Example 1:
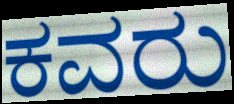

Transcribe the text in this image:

ಕವರು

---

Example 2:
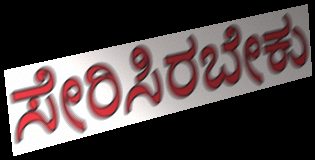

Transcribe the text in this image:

ಸೇರಿಸಿರಬೇಕು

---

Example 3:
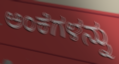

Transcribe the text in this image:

ಅಂಕೆಗಳನ್ನು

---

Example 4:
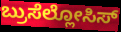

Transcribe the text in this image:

ಬ್ರುಸೆಲ್ಲೋಸಿಸ್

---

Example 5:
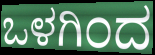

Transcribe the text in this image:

ಒಳಗಿಂದ